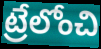
ట్రేలోంచి